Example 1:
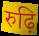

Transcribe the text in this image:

रुढ़ि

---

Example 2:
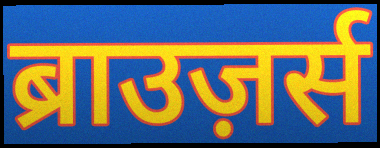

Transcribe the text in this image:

ब्राउज़र्स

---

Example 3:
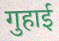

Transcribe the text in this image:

गुहाई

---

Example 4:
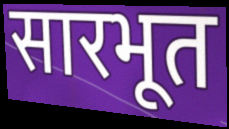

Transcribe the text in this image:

सारभूत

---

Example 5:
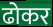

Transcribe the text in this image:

ढोकर